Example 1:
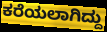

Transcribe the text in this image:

ಕರೆಯಲಾಗಿದ್ದು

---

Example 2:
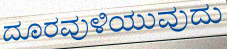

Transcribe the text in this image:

ದೂರವುಳಿಯುವುದು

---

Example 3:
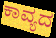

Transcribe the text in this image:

ಕಾವ್ಯದ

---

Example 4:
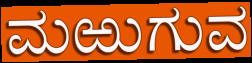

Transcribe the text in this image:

ಮಱುಗುವ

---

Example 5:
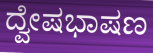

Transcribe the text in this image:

ದ್ವೇಷಭಾಷಣ